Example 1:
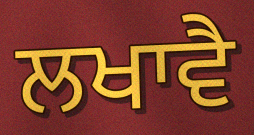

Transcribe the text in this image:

ਲਖਾਵੈ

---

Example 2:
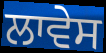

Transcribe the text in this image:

ਲਾਵੇਸ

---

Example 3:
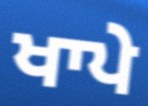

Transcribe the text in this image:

ਖਾਪੇ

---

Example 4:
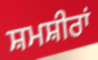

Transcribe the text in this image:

ਸ਼ਮਸ਼ੀਰਾਂ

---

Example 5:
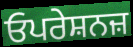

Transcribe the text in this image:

ਓਪਰੇਸ਼ਨਜ਼